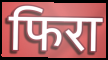
फिरा